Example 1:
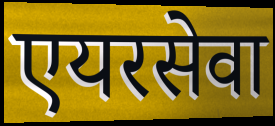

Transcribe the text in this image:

एयरसेवा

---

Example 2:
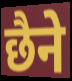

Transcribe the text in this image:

छैने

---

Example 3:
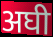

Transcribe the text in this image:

अघी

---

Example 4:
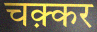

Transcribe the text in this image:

चक़्कर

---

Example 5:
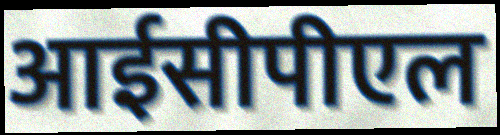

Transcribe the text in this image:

आईसीपीएल